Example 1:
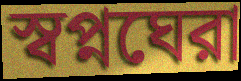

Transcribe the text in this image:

স্বপ্নঘেরা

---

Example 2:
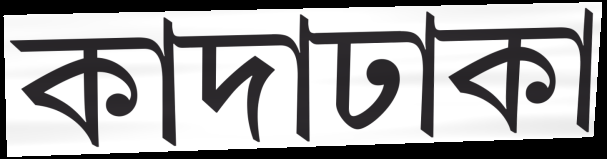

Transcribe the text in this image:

কাদাঢাকা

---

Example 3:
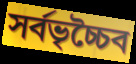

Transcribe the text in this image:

সর্বভৃচ্চৈব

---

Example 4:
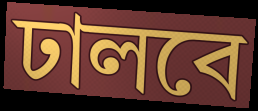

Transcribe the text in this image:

ঢালবে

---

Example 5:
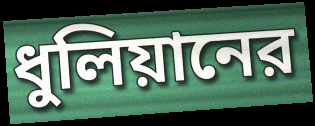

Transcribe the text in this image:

ধুলিয়ানের